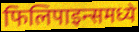
फिलिपाइन्समध्ये